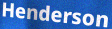
Henderson